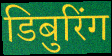
डिबुरिंग